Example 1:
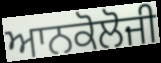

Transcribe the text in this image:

ਆਨਕੋਲੋਜੀ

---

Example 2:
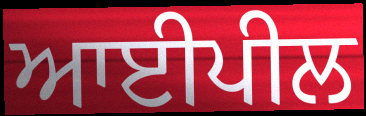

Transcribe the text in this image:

ਆਈਪੀਲ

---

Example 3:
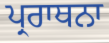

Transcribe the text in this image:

ਪ੍ਰਰਾਥਨਾ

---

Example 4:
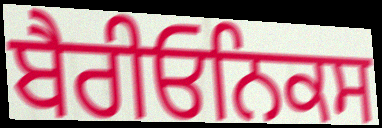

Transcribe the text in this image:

ਬੈਰੀਓਨਿਕਸ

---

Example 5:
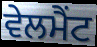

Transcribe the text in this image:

ਵੇਲਮੈਂਟ